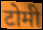
टोमी